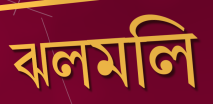
ঝলমলি